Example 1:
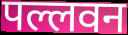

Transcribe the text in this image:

पल्लवन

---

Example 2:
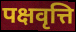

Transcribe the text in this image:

पक्षवृत्ति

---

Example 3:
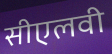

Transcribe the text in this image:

सीएलवी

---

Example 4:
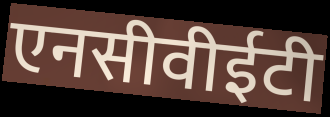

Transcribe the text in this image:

एनसीवीईटी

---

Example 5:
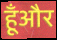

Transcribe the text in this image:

हूँऔर